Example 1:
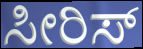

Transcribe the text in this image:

ಸೀರಿಸ್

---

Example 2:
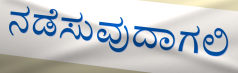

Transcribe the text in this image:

ನಡೆಸುವುದಾಗಲಿ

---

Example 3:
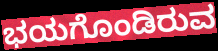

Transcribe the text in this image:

ಭಯಗೊಂಡಿರುವ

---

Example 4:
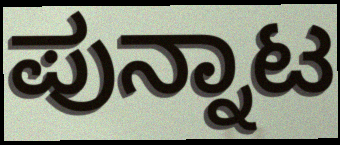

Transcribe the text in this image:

ಪುನ್ನಾಟ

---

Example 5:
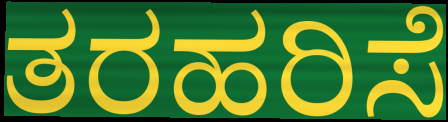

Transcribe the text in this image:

ತರಹರಿಸೆ